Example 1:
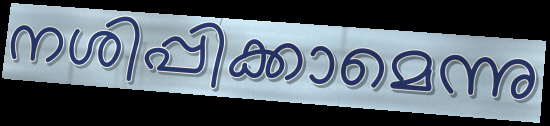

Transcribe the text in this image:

നശിപ്പിക്കാമെന്നു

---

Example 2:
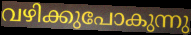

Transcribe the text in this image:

വഴിക്കുപോകുന്നു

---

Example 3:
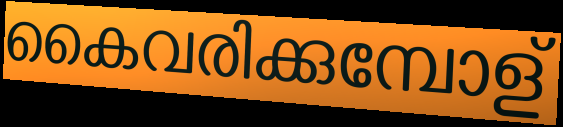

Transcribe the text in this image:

കൈവരിക്കുമ്പോള്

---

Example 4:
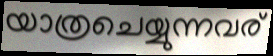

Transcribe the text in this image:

യാത്രചെയ്യുന്നവര്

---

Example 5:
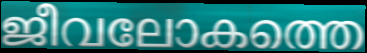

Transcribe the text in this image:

ജീവലോകത്തെ